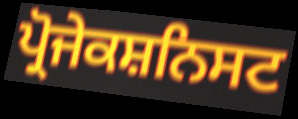
ਪ੍ਰੋਜੇਕਸ਼ਨਿਸਟ